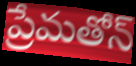
ప్రేమతోన్